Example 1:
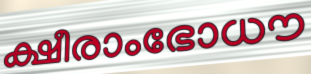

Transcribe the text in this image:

ക്ഷീരാംഭോധൗ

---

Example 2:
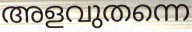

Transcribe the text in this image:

അളവുതന്നെ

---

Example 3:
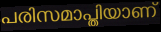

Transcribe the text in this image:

പരിസമാപ്തിയാണ്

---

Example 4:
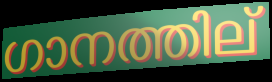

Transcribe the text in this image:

ഗാനത്തില്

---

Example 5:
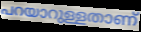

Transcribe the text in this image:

പറയാറുള്ളതാണ്